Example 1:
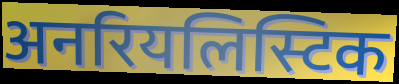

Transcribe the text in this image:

अनरियलिस्टिक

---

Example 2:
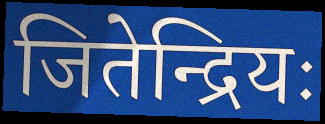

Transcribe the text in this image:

जितेन्द्रियः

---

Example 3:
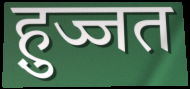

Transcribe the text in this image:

ह़ुज्जत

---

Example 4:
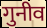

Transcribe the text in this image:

गुनीव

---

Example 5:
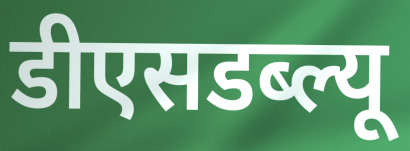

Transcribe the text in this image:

डीएसडब्ल्यू